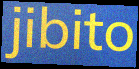
jibito